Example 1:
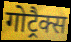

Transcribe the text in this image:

गोट्रैक्स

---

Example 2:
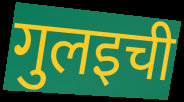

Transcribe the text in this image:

गुलइची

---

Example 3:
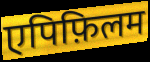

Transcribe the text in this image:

एपिफ़िलम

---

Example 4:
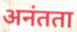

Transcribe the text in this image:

अनंतता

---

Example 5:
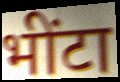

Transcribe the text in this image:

भींटा